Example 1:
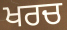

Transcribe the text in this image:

ਖਰਚ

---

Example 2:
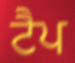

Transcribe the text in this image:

ਟੈਪ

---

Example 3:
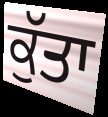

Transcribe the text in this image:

ਕੁੱਤਾ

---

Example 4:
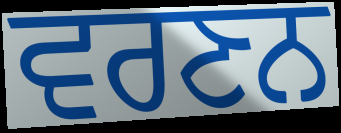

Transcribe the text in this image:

ਵਰਣਨ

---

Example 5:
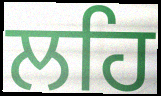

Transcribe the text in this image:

ਲਹਿ